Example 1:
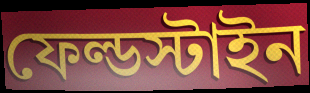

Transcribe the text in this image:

ফেল্ডস্টাইন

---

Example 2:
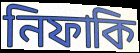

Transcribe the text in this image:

নিফাকি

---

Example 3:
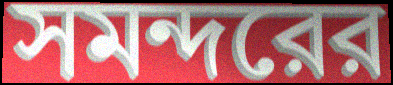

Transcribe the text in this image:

সমন্দরের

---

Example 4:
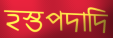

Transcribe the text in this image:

হস্তপদাদি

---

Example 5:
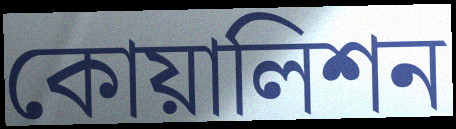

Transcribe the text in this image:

কোয়ালিশন